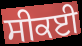
ਸੀਕਈ